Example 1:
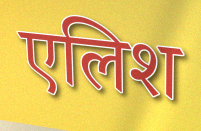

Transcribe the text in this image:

एलिश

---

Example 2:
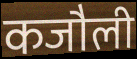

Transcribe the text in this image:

कजौली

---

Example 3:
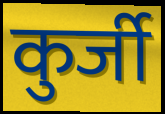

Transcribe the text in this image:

कुर्जी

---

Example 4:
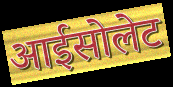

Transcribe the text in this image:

आईसोलेट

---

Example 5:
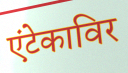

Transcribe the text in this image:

एंटेकाविर